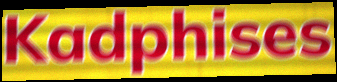
Kadphises